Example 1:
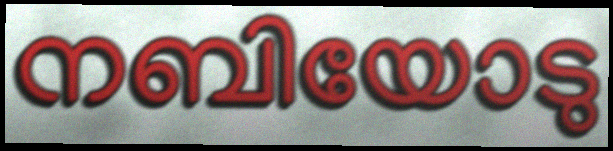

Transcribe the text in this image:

നബിയോടു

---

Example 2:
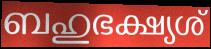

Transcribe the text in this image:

ബഹുഭക്ഷ്യശ്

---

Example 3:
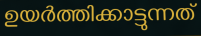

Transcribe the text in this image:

ഉയർത്തിക്കാട്ടുന്നത്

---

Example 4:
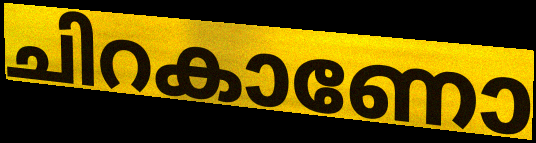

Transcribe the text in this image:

ചിറകാണോ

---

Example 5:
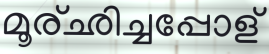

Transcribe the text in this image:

മൂര്ഛിച്ചപ്പോള്